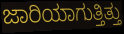
ಜಾರಿಯಾಗುತ್ತಿತ್ತು